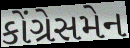
કોંગ્રેસમેન